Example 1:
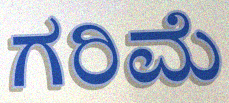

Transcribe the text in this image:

ಗರಿಮೆ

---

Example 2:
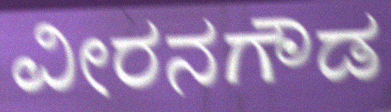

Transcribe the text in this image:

ವೀರನಗೌಡ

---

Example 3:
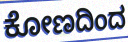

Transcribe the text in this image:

ಕೋಣದಿಂದ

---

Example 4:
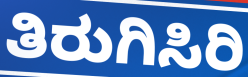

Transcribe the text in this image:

ತಿರುಗಿಸಿರಿ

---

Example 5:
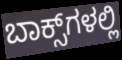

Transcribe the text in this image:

ಬಾಕ್ಸ್‌ಗಳಲ್ಲಿ